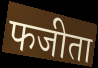
फजीता